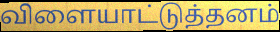
விளையாட்டுத்தனம்